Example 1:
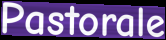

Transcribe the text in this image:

Pastorale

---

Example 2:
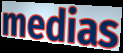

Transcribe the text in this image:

medias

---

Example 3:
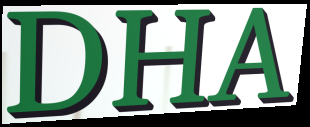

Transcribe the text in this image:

DHA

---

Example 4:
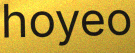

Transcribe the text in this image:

hoyeo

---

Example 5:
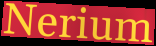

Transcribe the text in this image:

Nerium